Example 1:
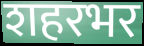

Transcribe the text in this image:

शहरभर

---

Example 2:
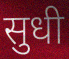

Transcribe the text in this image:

सुधी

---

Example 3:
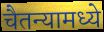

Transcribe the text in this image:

चैतन्यामध्ये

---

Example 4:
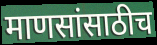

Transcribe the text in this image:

माणसांसाठीच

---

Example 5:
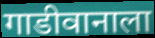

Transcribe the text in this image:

गाडीवानाला